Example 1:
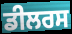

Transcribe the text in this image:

ਡੀਲਰਸ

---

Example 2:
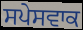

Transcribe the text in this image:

ਸਪੇਸਵਾਕ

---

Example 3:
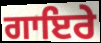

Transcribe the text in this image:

ਗਾਇਰੇ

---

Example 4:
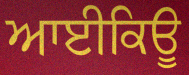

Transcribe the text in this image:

ਆਈਕਿਊ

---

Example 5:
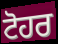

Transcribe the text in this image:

ਟੋਹਰ